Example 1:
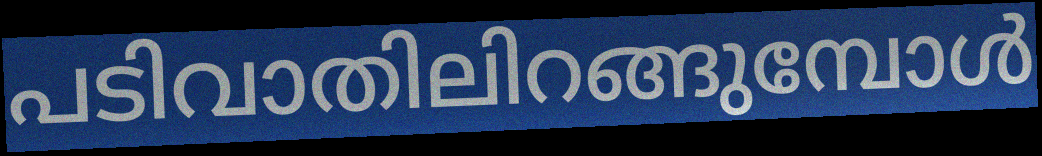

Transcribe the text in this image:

പടിവാതിലിറങ്ങുമ്പോൾ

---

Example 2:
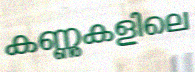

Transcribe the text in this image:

കണ്ണുകളിലെ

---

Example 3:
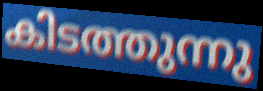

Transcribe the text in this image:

കിടത്തുന്നു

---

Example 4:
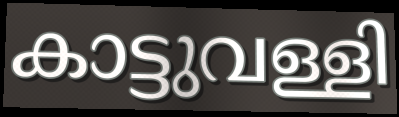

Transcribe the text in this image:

കാട്ടുവള്ളി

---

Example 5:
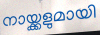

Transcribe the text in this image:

നായ്ക്കളുമായി